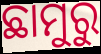
ଛାମୁରୁ